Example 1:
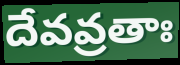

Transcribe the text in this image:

దేవవ్రతాః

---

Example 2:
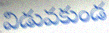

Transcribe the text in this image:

విడువకుండ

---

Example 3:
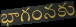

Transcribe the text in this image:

భాగంనకు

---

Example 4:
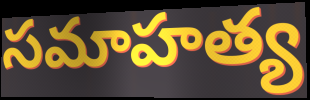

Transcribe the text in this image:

సమాహత్య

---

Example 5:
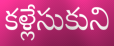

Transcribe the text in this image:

కళ్లేసుకుని